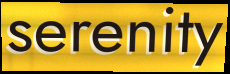
serenity